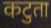
कटुता